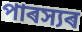
পাৰস্যৰ